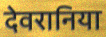
देवरानिया